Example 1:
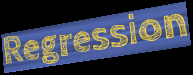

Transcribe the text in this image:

Regression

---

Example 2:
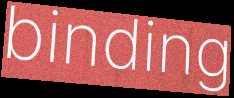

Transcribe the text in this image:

binding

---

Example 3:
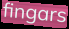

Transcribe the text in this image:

fingars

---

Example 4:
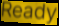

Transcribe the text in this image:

Ready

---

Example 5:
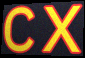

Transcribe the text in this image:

cx